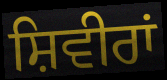
ਸ਼ਿਵੀਰਾਂ